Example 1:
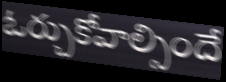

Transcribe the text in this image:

ఓర్చుకోవాల్సిందే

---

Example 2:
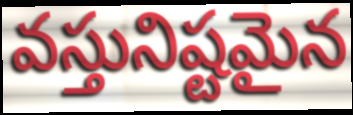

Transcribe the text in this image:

వస్తునిష్టమైన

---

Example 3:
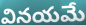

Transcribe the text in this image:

వినయమే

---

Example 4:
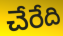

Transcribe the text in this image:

చేరేది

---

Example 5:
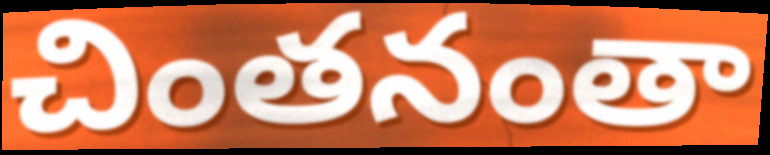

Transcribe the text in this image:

చింతనంతా